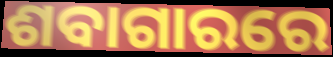
ଶବାଗାରରେ